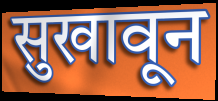
सुखावून